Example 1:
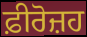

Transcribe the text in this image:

ਫ਼ੀਰੋਜ਼ਹ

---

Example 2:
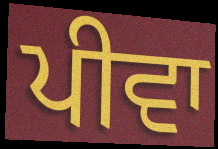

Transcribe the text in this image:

ਪੀਵਾ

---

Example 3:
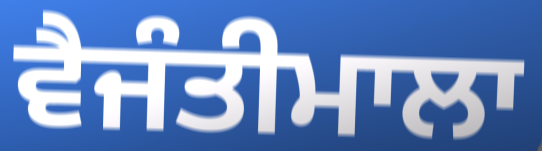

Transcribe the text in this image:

ਵੈਜੰਤੀਮਾਲਾ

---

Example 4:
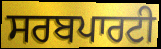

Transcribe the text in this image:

ਸਰਬਪਾਰਟੀ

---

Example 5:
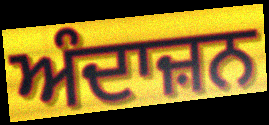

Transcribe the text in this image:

ਅੰਦਾਜ਼ਨ